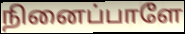
நினைப்பாளே